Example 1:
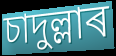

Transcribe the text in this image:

চাদুল্লাৰ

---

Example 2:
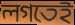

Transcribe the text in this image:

লগতেই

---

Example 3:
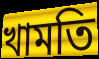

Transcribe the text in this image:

খামতি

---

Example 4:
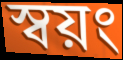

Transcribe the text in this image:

স্বয়ং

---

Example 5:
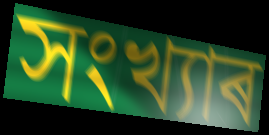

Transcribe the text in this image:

সংখ্যাৰ